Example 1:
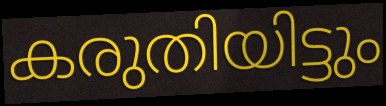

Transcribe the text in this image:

കരുതിയിട്ടും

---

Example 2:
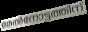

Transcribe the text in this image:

മേൽനോട്ടത്തിന്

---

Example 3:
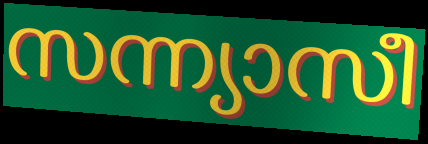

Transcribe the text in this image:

സന്ന്യാസീ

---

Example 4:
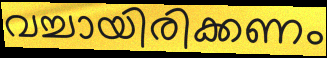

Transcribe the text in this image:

വച്ചായിരിക്കണം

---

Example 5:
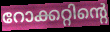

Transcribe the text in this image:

റോക്കറ്റിന്റെ